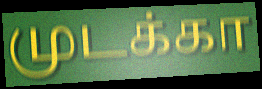
முடக்கா